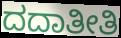
ದದಾತೀತಿ